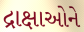
દ્રાક્ષાઓને